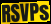
RSVPs